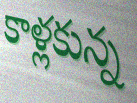
కాళ్లకున్న